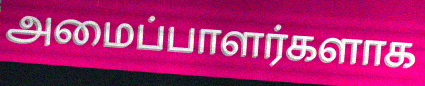
அமைப்பாளர்களாக